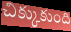
చిక్కుకుంది